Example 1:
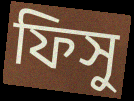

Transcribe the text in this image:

ফিসু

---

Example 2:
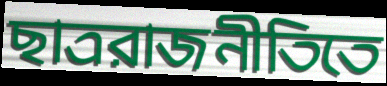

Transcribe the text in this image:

ছাত্ররাজনীতিতে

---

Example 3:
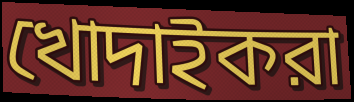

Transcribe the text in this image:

খোদাইকরা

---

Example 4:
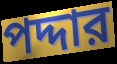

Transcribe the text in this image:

পদ্দার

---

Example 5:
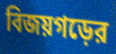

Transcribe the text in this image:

বিজয়গড়ের